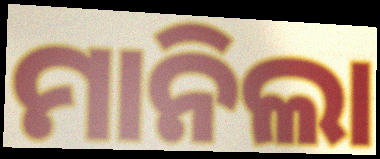
ମାନିଲା